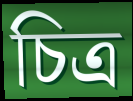
চিত্ৰ